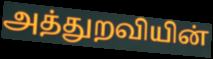
அத்துறவியின்